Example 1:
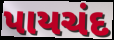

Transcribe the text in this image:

પાયચંદ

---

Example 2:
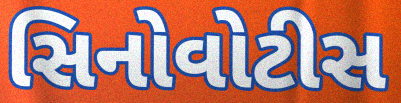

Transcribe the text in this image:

સિનોવોટીસ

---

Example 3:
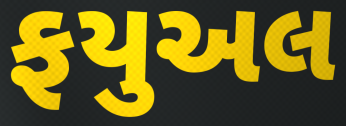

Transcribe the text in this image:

ફયુઅલ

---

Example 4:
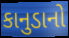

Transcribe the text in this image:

કાનુડાનો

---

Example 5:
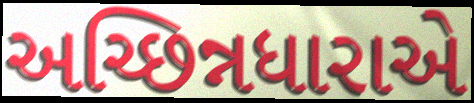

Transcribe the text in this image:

અચ્છિન્નધારાએ